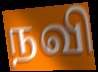
நவி